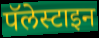
पॅलेस्टाइन